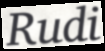
Rudi